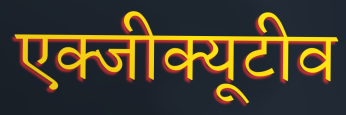
एक्जीक्यूटीव